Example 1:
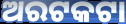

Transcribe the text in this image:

ଅରଟକଟା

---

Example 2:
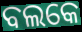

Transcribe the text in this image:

ବଲକେ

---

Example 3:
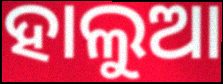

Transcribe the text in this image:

ହାଲୁଆ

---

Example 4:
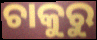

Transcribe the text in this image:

ଚାକୁରୁ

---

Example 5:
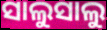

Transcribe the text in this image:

ସାଲୁସାଲୁ